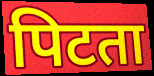
पिटता